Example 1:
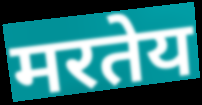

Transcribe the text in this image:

मरतेय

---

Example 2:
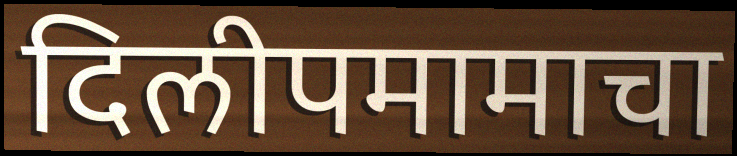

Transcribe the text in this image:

दिलीपमामाचा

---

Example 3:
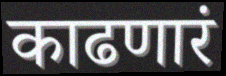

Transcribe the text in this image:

काढणारं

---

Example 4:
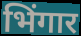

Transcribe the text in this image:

भिंगार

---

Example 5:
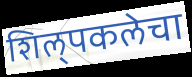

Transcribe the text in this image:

शिल्पकलेचा